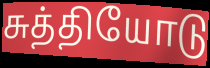
சுத்தியோடு